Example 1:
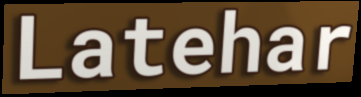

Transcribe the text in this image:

Latehar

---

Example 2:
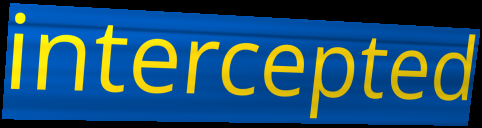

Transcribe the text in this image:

intercepted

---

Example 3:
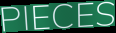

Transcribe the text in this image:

PIECES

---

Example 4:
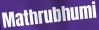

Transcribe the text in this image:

Mathrubhumi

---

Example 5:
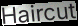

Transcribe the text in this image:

Haircut